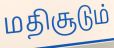
மதிசூடும்